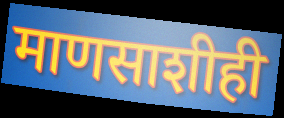
माणसाशीही